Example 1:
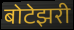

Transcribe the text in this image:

बोटेझरी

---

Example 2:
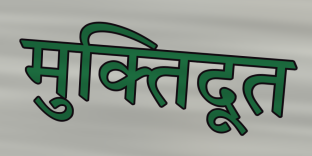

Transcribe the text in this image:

मुक्तिदूत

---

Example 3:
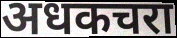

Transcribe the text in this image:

अधकचरा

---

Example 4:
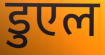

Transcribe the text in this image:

डुएल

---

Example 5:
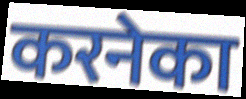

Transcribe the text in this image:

करनेका